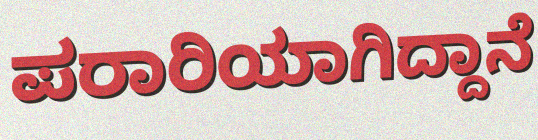
ಪರಾರಿಯಾಗಿದ್ದಾನೆ